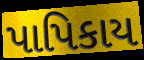
પાપિકાય